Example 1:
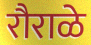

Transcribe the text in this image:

रौराळे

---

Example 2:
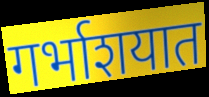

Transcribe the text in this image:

गर्भाशयात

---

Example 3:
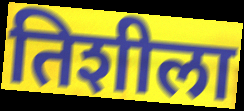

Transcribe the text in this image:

तिशीला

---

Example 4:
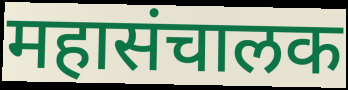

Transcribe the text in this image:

महासंचालक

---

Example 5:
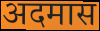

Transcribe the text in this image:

अदमास